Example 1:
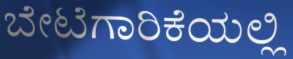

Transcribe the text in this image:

ಬೇಟೆಗಾರಿಕೆಯಲ್ಲಿ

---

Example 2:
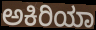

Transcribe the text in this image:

ಅಕಿರಿಯಾ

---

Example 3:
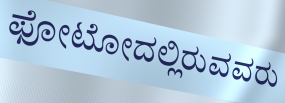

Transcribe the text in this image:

ಫೋಟೋದಲ್ಲಿರುವವರು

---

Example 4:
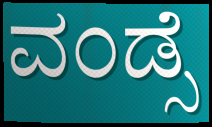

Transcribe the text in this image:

ವಂಡ್ಸೆ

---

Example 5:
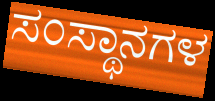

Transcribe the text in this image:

ಸಂಸ್ಥಾನಗಳ